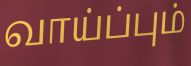
வாய்ப்பும்